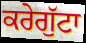
ਕਰੇਗੁੱਟਾ